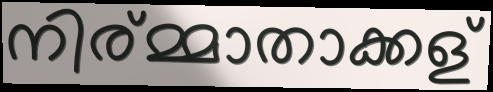
നിര്മ്മാതാക്കള്